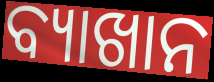
ବ୍ୟାଖାନ